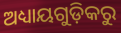
ଅଧ୍ୟାୟଗୁଡ଼ିକରୁ